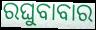
ରଘୁବାବାର